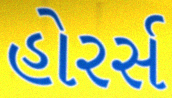
હોરર્સ